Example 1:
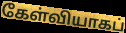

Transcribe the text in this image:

கேள்வியாகப்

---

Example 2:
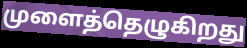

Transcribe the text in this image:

முளைத்தெழுகிறது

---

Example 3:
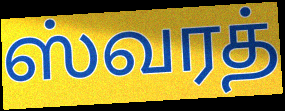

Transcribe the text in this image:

ஸ்வரத்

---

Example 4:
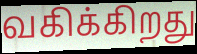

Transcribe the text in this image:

வகிக்கிறது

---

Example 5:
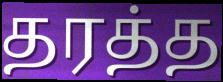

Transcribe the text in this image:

தரத்த